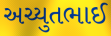
અચ્યુતભાઈ